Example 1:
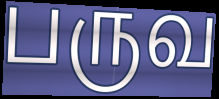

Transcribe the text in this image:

பருவ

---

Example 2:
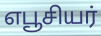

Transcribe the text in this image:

எபூசியர்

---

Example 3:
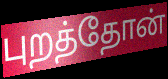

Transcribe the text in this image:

புறத்தோன்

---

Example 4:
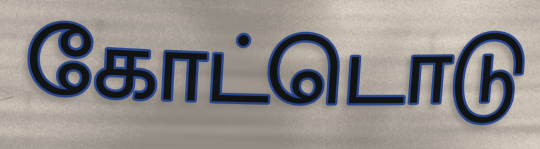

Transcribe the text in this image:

கோட்டொடு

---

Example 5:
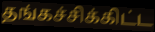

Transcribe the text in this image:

தங்கச்சிக்கிட்ட